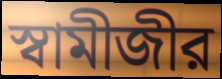
স্বামীজীর